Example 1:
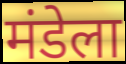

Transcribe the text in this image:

मंडेला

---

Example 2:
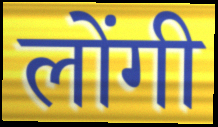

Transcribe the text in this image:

लोंगी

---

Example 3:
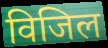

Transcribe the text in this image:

विजिल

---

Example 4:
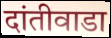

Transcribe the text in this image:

दांतीवाडा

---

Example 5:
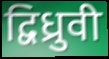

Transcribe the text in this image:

द्विध्रुवी